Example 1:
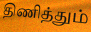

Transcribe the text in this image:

திணித்தும்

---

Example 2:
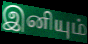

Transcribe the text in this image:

இனியும்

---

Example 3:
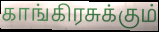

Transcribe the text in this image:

காங்கிரசுக்கும்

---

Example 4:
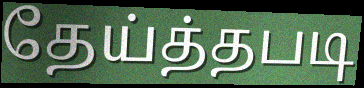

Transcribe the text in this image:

தேய்த்தபடி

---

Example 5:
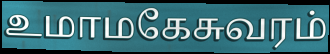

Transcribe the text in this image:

உமாமகேசுவரம்